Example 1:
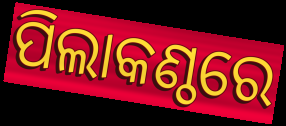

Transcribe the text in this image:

ପିଲାକଣ୍ଠରେ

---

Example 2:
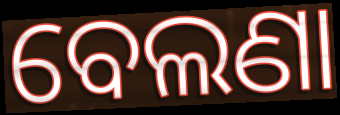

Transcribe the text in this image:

ବେଲଣା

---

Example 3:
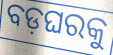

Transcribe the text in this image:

ବଡ଼ଘରକୁ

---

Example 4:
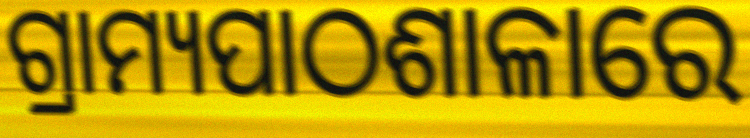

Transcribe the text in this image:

ଗ୍ରାମ୍ୟପାଠଶାଳାରେ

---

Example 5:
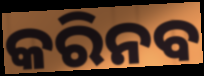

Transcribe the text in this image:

କରିନବ